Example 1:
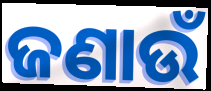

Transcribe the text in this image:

ଜଣାଉଁ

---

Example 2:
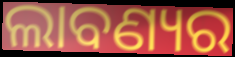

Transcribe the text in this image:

ଲାବଣ୍ୟର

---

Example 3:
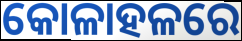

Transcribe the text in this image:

କୋଳାହଳରେ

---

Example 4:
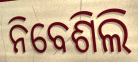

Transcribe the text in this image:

ନିବେଶିଲି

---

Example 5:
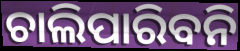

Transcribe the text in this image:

ଚାଲିପାରିବନି